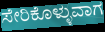
ಸೇರಿಕೊಳ್ಳುವಾಗ